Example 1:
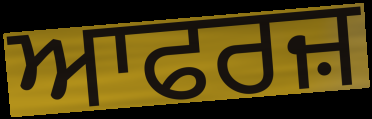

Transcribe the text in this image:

ਆਫਰਜ਼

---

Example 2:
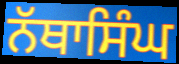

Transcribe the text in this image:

ਨੱਥਾਸਿੰਘ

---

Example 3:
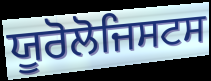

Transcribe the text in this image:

ਯੂਰੋਲੋਜਿਸਟਸ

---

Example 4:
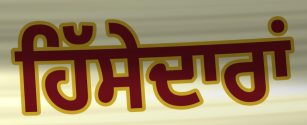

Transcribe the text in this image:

ਹਿੱਸੇਦਾਰਾਂ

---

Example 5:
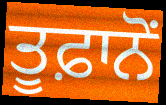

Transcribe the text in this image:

ਤੂਫ਼ਾਨੋਂ